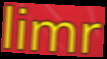
limr